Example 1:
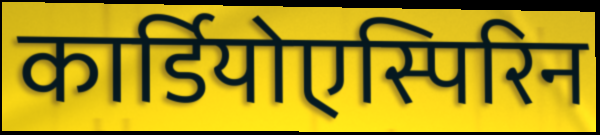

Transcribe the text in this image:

कार्डियोएस्पिरिन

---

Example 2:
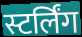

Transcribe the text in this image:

स्‍टर्लिंग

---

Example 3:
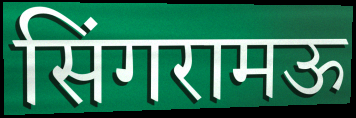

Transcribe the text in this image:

सिंगरामऊ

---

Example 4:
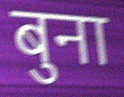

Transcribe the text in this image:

बुना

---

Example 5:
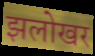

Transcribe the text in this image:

झलोखर